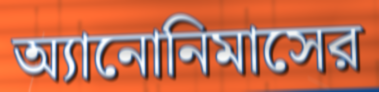
অ্যানোনিমাসের